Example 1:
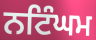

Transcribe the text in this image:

ਨਟਿੰਘਮ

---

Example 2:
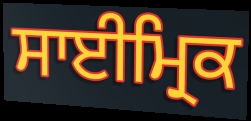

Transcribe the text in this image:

ਸਾਈਮ੍ਰਿਕ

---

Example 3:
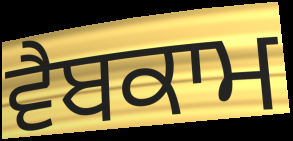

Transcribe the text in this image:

ਵੈਬਕਾਮ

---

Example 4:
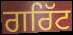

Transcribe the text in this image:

ਗਰਿੱਟ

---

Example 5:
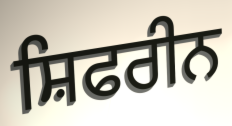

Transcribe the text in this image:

ਸ਼ਿਫਰੀਨ